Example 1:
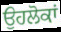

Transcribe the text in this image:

ਉਹਲੋਕਾਂ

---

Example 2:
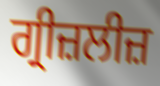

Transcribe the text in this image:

ਗ੍ਰੀਜ਼ਲੀਜ਼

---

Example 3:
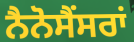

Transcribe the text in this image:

ਨੈਨੋਸੈਂਸਰਾਂ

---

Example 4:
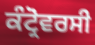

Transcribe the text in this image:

ਕੰਟ੍ਰੋਵਰਸੀ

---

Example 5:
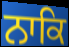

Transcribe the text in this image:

ਨਾਕਿ